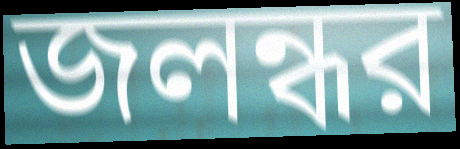
জলন্ধর